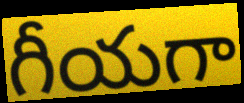
గీయగా